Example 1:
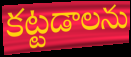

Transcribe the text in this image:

కట్టడాలను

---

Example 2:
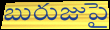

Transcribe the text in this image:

బురుజుపై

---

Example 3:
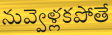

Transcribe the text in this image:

నువ్వెళ్లకపోతే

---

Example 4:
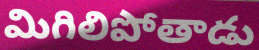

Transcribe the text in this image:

మిగిలిపోతాడు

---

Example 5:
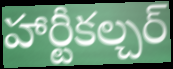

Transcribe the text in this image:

హార్టీకల్చర్